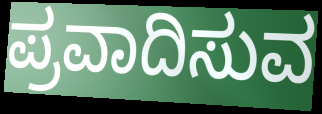
ಪ್ರವಾದಿಸುವ